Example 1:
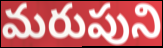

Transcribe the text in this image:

మరుపుని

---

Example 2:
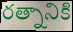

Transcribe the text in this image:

రత్నానికి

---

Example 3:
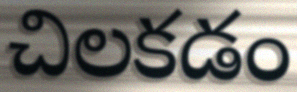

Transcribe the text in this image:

చిలకడం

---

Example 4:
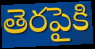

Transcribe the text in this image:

తెరపైకి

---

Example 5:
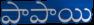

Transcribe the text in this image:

పాపాయి